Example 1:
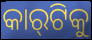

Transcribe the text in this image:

କାର୍‌ଟିକୁ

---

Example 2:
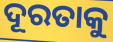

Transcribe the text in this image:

ଦୂରତାକୁ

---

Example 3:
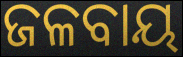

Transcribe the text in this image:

ଜଳବାୟ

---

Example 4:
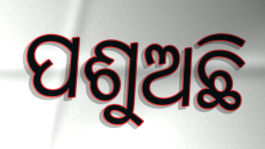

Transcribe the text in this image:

ପଶୁଅଛି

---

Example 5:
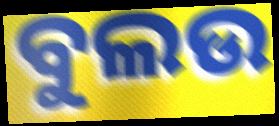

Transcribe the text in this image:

ବୁଲଉ